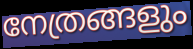
നേത്രങ്ങളും